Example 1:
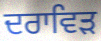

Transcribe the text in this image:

ਦਰਾਵਿੜ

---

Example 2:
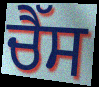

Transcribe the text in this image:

ਚੈੱਸ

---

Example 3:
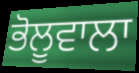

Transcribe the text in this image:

ਭੋਲੂਵਾਲਾ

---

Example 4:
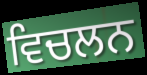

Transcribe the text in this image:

ਵਿਚਲਨ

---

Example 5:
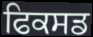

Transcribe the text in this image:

ਫਿਕਸਡ